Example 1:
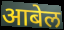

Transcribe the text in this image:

आबेल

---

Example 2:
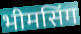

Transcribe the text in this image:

भीमसिंग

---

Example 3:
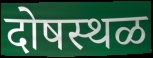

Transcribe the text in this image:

दोषस्थळ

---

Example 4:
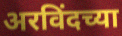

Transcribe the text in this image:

अरविंदच्या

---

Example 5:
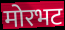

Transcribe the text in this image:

मोरभट